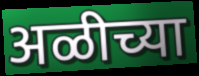
अळीच्या